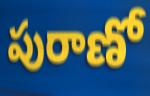
పురాణో